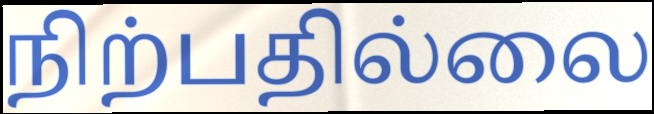
நிற்பதில்லை